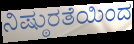
ನಿಷ್ಠುರತೆಯಿಂದ